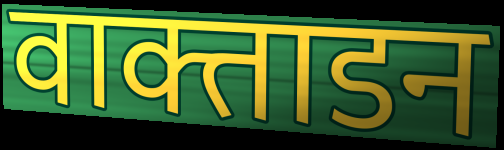
वाक्ताडन